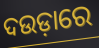
ଦଉଡ଼ାରେ